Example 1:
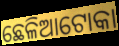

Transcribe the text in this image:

ଛେଳିଆଟୋକା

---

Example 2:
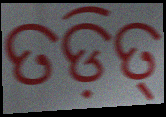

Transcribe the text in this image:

ତଡ଼ିତ୍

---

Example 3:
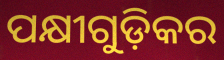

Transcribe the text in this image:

ପକ୍ଷୀଗୁଡ଼ିକର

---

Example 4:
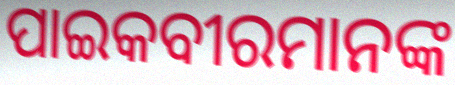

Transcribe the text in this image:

ପାଇକବୀରମାନଙ୍କ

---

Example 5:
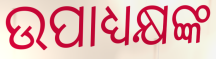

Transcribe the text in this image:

ଉପାଧ୍ୟକ୍ଷଙ୍କ